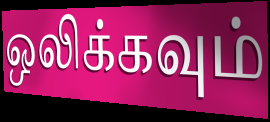
ஒலிக்கவும்